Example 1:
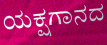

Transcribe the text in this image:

ಯಕ್ಷಗಾನದ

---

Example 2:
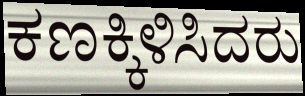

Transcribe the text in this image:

ಕಣಕ್ಕಿಳಿಸಿದರು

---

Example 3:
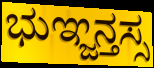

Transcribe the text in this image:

ಭುಞ್ಜನ್ತಸ್ಸ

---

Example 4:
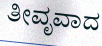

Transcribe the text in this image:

ತೀವೃವಾದ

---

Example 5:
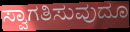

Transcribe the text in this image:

ಸ್ವಾಗತಿಸುವುದೂ